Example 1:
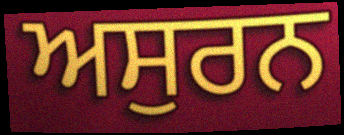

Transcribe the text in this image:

ਅਸੁਰਨ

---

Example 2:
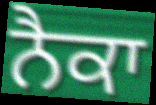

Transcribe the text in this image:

ਨੈਕਾ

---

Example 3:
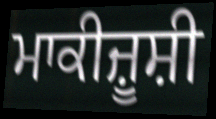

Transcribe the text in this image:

ਮਾਕੀਜ਼ੂਸ਼ੀ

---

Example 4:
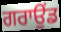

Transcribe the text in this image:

ਗਰਾਉਂਡ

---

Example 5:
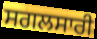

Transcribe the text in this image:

ਸਗਲਸਾਰੀ